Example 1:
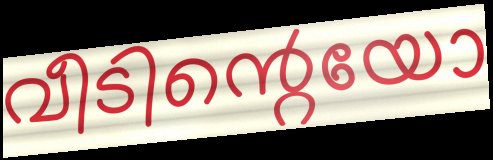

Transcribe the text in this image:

വീടിന്റെയോ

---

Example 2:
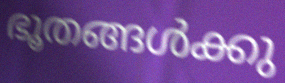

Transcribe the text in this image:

ഭൂതങ്ങൾക്കു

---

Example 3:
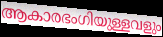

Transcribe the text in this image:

ആകാരഭംഗിയുള്ളവളും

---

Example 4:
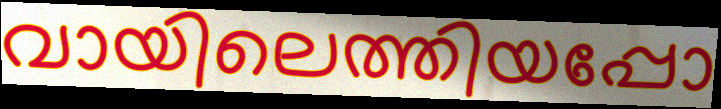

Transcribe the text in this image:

വായിലെത്തിയപ്പോ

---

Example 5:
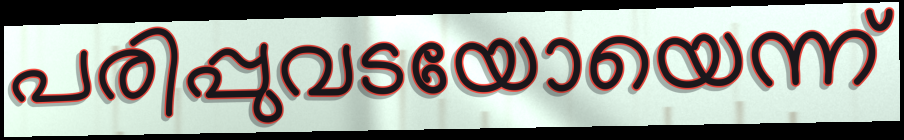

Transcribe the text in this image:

പരിപ്പുവടയോയെന്ന്